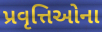
પ્રવૃત્તિઓના